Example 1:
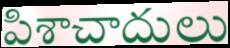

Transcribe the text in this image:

పిశాచాదులు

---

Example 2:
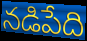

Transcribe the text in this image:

నడిపేది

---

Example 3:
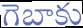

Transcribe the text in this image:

గెబాకు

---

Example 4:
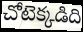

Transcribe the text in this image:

చోటెక్కడిది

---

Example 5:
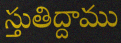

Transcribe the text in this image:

స్తుతిద్దాము